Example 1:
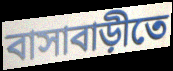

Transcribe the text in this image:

বাসাবাড়ীতে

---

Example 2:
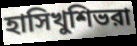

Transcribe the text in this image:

হাসিখুশিভরা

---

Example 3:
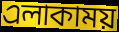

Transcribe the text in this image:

এলাকাময়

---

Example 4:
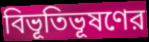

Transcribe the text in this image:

বিভূতিভূষণের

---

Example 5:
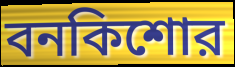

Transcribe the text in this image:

বনকিশোর